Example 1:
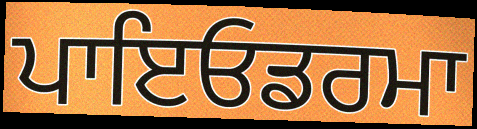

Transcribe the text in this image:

ਪਾਇਓਡਰਮਾ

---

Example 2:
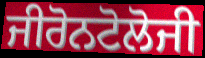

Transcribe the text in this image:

ਜੀਰੋਨਟੋਲੋਜੀ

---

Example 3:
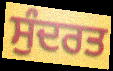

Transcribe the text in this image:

ਸੁੰਦਰਤ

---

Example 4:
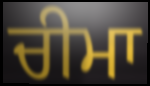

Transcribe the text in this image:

ਚੀਮਾ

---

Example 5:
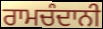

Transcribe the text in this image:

ਰਾਮਚੰਦਾਨੀ